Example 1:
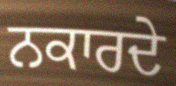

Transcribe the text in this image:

ਨਕਾਰਦੇ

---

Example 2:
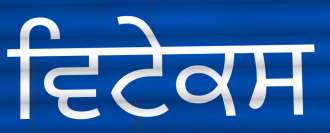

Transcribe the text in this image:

ਵਿਟੇਕਸ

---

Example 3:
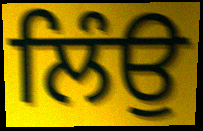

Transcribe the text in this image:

ਲਿੰਉ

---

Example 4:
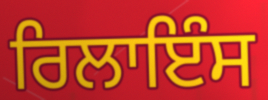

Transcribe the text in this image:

ਰਿਲਾਇੰਸ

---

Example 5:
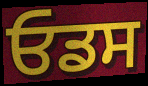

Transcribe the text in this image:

ਓਡਸ